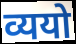
व्ययो